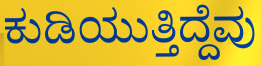
ಕುಡಿಯುತ್ತಿದ್ದೆವು